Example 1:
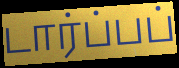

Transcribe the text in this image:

டார்ப்பப்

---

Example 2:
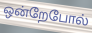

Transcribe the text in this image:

ஒன்றேபோல்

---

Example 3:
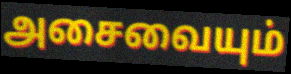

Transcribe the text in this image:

அசைவையும்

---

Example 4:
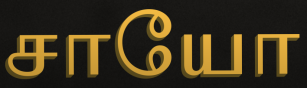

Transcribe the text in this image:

சாயோ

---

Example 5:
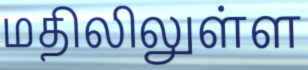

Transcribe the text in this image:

மதிலிலுள்ள